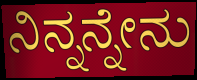
ನಿನ್ನನ್ನೇನು